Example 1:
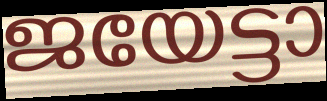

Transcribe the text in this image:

ജയേട്ടാ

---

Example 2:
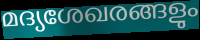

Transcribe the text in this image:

മദ്യശേഖരങ്ങളും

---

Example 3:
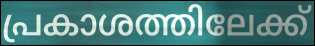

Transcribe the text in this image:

പ്രകാശത്തിലേക്ക്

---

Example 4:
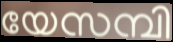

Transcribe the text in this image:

യേസമ്പി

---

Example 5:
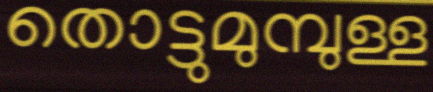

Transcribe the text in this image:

തൊട്ടുമുമ്പുള്ള